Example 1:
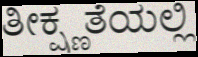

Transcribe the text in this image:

ತೀಕ್ಷ್ಣತೆಯಲ್ಲಿ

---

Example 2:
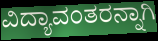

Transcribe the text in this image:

ವಿದ್ಯಾವಂತರನ್ನಾಗಿ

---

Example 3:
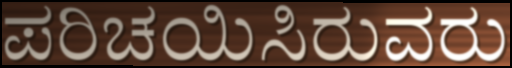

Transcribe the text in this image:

ಪರಿಚಯಿಸಿರುವರು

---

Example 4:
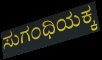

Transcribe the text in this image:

ಸುಗಂಧಿಯಕ್ಕ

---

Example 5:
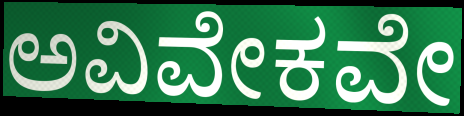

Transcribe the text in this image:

ಅವಿವೇಕವೇ